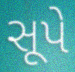
સૂપે